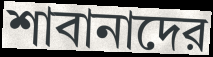
শাবানাদের